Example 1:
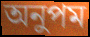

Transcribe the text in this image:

অনুপম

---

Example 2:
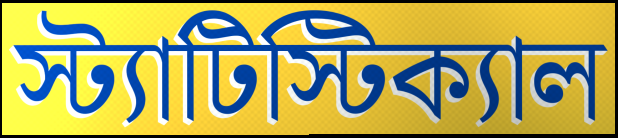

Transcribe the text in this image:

স্ট্যাটিস্টিক্যাল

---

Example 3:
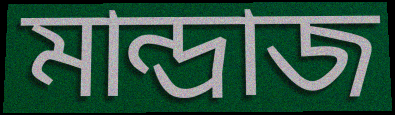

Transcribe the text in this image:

মান্দ্রাজ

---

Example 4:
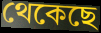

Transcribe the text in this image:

থেকেছে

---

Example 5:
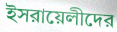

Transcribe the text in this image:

ইসরায়েলীদের